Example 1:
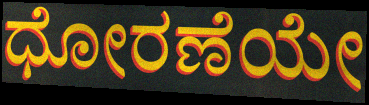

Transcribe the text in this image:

ಧೋರಣೆಯೇ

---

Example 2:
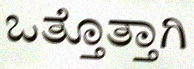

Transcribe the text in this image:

ಒತ್ತೊತ್ತಾಗಿ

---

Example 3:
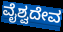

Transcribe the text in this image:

ವೈಶ್ವದೇವ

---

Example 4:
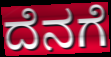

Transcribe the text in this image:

ದೆನಗೆ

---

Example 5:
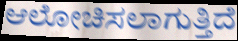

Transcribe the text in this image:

ಆಲೋಚಿಸಲಾಗುತ್ತಿದೆ